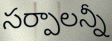
సర్పాలన్నీ